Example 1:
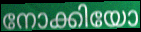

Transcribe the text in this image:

നോക്കിയോ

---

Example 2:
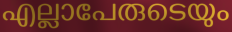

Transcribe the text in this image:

എല്ലാപേരുടെയും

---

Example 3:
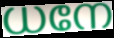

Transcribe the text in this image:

ധനേ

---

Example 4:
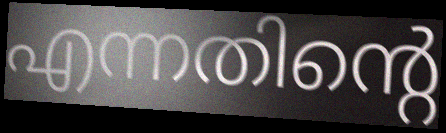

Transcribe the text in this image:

എന്നതിന്റെ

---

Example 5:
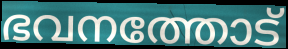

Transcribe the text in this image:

ഭവനത്തോട്